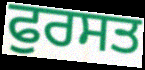
ਫੁਰਸਤ